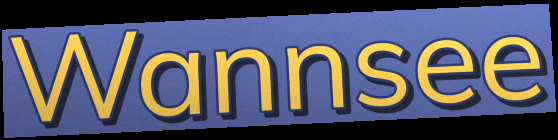
Wannsee